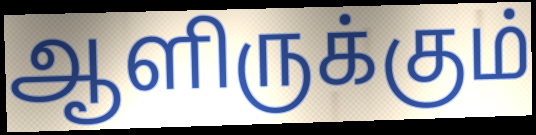
ஆளிருக்கும்